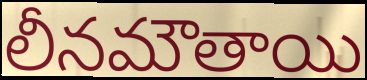
లీనమౌతాయి